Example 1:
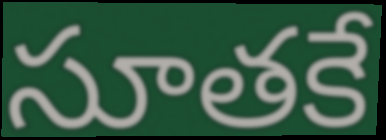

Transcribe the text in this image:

సూతకే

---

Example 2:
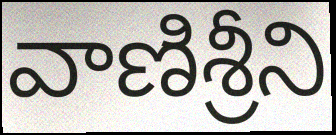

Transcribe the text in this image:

వాణిశ్రీని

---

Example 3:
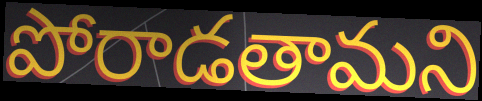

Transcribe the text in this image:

పోరాడతామని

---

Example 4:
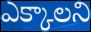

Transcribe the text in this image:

ఎక్కాలని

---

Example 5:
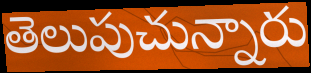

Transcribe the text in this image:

తెలుపుచున్నారు